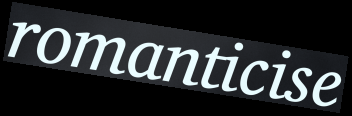
romanticise